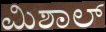
ಮಿಶಾಲ್